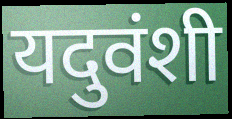
यदुवंशी